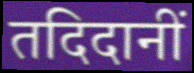
तदिदानीं